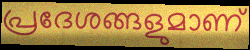
പ്രദേശങ്ങളുമാണ്